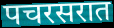
पचरसरात